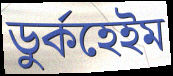
ডুর্কহেইম